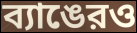
ব্যাঙেরও